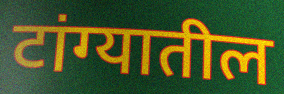
टांग्यातील